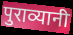
पुराव्यानी